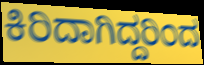
ಕಿರಿದಾಗಿದ್ದರಿಂದ